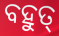
ବହୁତ୍